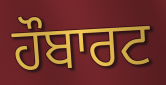
ਹੌਬਾਰਟ